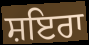
ਸ਼ਇਰਾ